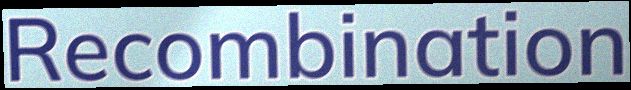
Recombination